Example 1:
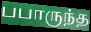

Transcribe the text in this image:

பபாருந்த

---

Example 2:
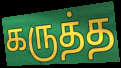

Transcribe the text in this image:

கருத்த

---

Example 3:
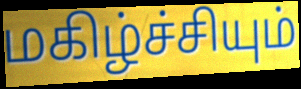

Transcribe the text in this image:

மகிழ்ச்சியும்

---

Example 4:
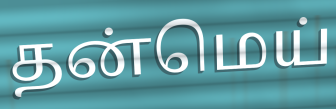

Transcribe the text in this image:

தன்மெய்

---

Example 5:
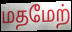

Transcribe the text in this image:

மதமேற்